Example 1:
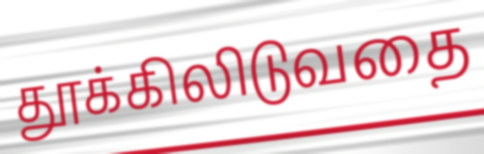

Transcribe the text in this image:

தூக்கிலிடுவதை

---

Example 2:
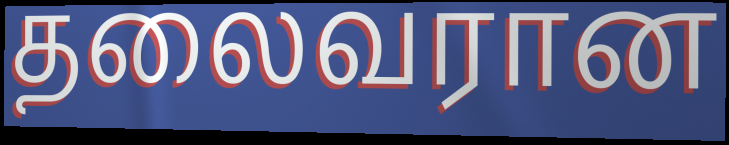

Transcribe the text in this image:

தலைவரான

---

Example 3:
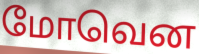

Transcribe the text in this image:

மோவென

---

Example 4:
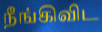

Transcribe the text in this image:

நீங்கிவிட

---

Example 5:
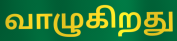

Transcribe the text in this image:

வாழுகிறது